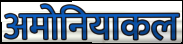
अमोनियाकल